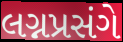
લગ્નપ્રસંગે